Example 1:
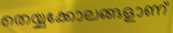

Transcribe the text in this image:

തെയ്യക്കോലങ്ങളാണ്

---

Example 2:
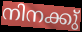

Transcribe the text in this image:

നിനക്കു്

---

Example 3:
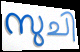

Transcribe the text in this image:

സുചി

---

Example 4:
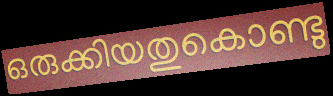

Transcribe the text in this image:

ഒരുക്കിയതുകൊണ്ടു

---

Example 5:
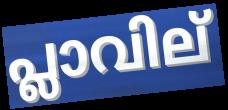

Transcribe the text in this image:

പ്ലാവില്